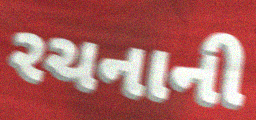
રચનાની